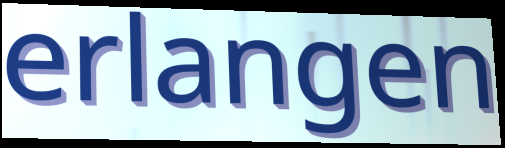
erlangen